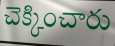
చెక్కించారు